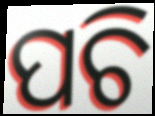
ପଚି